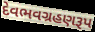
દેવભવગ્રહણરૂપ